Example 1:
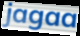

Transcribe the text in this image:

jagaa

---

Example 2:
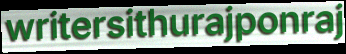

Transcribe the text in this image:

writersithurajponraj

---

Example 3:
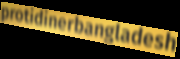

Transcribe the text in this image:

protidinerbangladesh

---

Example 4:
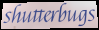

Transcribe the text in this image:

shutterbugs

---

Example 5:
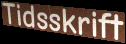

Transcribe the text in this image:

Tidsskrift